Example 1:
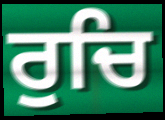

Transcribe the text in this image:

ਰੁਚਿ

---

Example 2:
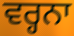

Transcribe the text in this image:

ਵਰ੍ਹਨਾ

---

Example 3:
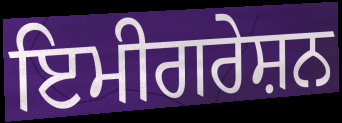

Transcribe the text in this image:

ਇਮੀਗਰੇਸ਼ਨ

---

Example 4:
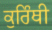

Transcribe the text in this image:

ਕੁਰਿੰਥੀ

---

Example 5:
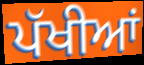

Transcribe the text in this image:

ਪੱਖੀਆਂ